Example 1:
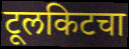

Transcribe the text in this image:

टूलकिटचा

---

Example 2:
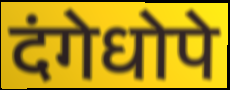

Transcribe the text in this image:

दंगेधोपे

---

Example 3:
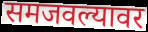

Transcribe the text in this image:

समजवल्यावर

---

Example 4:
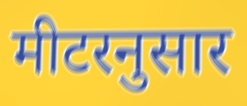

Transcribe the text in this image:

मीटरनुसार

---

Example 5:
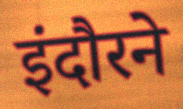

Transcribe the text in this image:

इंदौरने